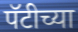
पॅटीच्या